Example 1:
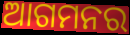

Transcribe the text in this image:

ଆଗମନର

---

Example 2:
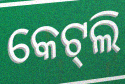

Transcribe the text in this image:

କେଟ୍‍ଲି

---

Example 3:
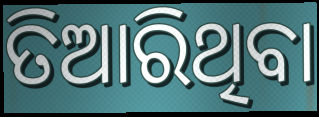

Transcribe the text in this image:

ତିଆରିଥିବା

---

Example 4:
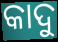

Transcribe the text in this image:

କାଦୁ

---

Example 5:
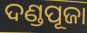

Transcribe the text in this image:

ଦଣ୍ଡପୂଜା